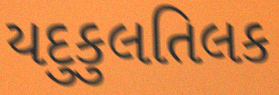
યદુકુલતિલક